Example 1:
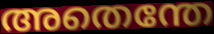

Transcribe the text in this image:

അതെന്തേ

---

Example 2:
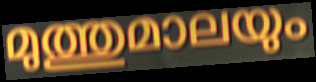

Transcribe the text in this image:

മുത്തുമാലയും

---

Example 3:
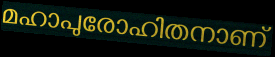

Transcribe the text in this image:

മഹാപുരോഹിതനാണ്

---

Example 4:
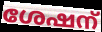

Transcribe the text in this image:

ശേഷന്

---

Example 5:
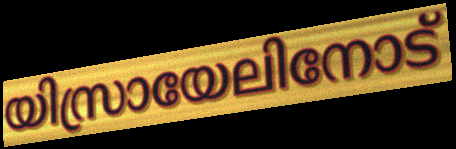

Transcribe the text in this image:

യിസ്രായേലിനോട്